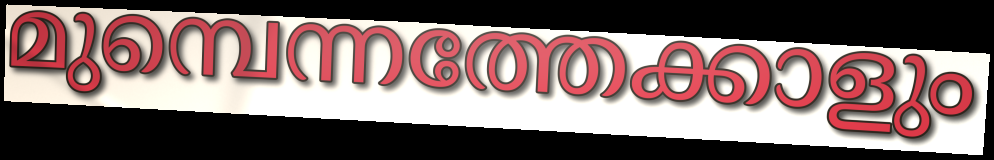
മുമ്പെന്നത്തേക്കാളും